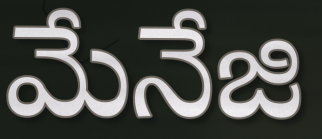
మేనేజి